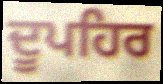
ਦੂਪਹਿਰ